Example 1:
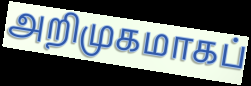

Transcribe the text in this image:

அறிமுகமாகப்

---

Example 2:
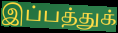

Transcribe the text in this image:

இப்பத்துக்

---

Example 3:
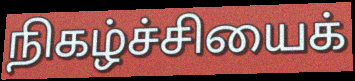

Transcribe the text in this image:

நிகழ்ச்சியைக்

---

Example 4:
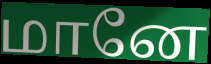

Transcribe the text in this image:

மானே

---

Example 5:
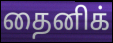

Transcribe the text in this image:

தைனிக்